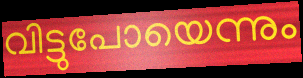
വിട്ടുപോയെന്നും